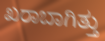
ಖರಾಬಾಗಿತ್ತು